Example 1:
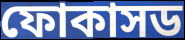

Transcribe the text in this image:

ফোকাসড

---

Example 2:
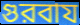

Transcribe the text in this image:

গুরবায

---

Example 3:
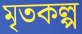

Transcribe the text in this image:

মৃতকল্প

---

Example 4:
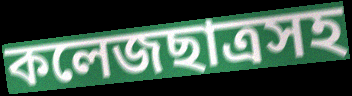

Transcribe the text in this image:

কলেজছাত্রসহ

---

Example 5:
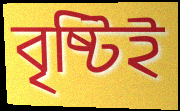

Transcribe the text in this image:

বৃষ্টিই